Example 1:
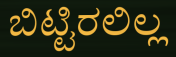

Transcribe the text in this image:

ಬಿಟ್ಟಿರಲಿಲ್ಲ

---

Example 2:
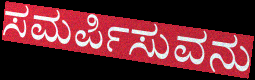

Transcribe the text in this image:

ಸಮರ್ಪಿಸುವನು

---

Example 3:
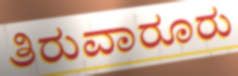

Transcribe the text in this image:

ತಿರುವಾರೂರು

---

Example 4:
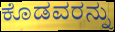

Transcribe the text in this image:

ಕೊಡವರನ್ನು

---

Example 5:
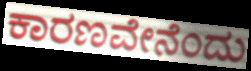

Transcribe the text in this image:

ಕಾರಣವೇನೆಂದು